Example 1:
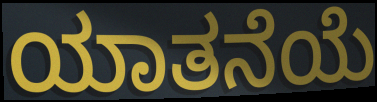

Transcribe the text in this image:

ಯಾತನೆಯೆ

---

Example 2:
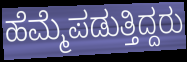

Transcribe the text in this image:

ಹೆಮ್ಮೆಪಡುತ್ತಿದ್ದರು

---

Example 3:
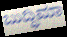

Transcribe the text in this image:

ಬುದ್ಧಿಮಾ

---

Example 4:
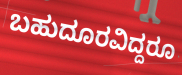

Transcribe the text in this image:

ಬಹುದೂರವಿದ್ದರೂ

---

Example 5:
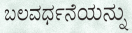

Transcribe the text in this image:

ಬಲವರ್ಧನೆಯನ್ನು